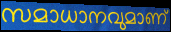
സമാധാനവുമാണ്